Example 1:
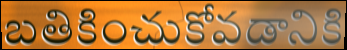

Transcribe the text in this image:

బతికించుకోవడానికి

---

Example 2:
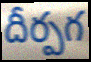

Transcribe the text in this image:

దీర్పగ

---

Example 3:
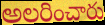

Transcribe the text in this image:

అలరించారు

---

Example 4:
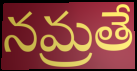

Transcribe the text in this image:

నమ్రతే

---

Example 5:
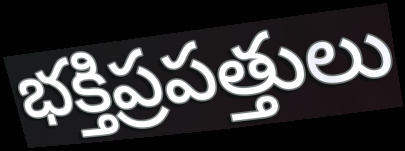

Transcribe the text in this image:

భక్తిప్రపత్తులు